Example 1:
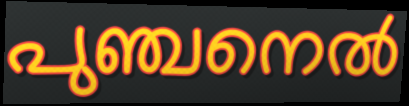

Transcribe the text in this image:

പുഞ്ചനെൽ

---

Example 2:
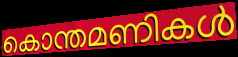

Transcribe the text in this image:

കൊന്തമണികൾ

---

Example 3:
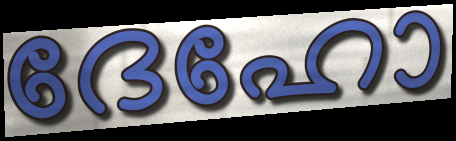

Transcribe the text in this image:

ദേഹോ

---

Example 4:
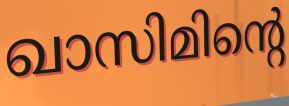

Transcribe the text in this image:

ഖാസിമിന്റെ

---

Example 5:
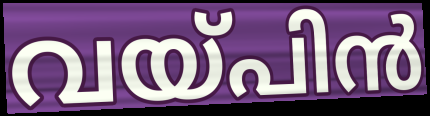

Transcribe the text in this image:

വയ്പിൻ